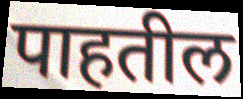
पाहतील